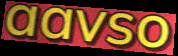
aavso